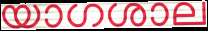
യാഗശാല